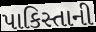
પાકિસ્તાની